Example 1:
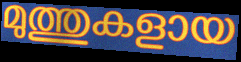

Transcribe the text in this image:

മുത്തുകളായ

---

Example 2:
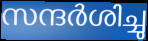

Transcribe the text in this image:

സന്ദർശിച്ചു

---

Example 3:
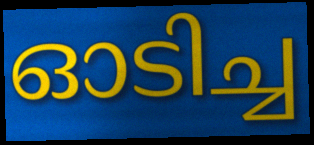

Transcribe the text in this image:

ഓടിച്ച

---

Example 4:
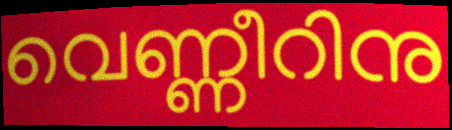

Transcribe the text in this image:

വെണ്ണീറിനു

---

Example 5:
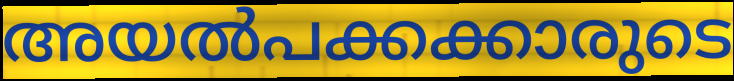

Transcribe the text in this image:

അയൽപക്കക്കാരുടെ